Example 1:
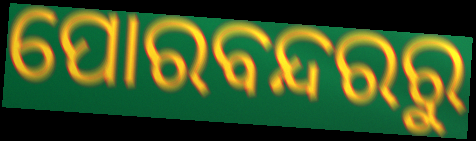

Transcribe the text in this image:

ପୋରବନ୍ଦରରୁ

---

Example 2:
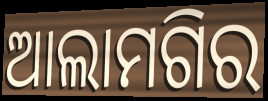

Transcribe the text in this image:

ଆଲାମଗିର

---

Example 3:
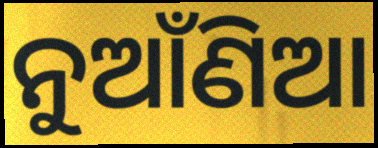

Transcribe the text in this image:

ନୁଆଁଣିଆ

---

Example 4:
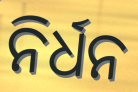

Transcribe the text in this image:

ନିର୍ଧନ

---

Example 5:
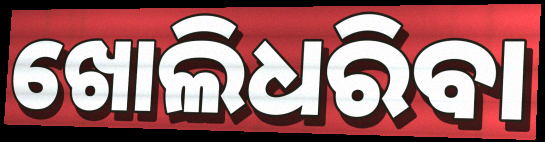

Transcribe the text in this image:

ଖୋଲିଧରିବା